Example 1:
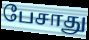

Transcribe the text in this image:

பேசாது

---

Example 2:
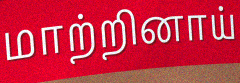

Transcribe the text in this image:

மாற்றினாய்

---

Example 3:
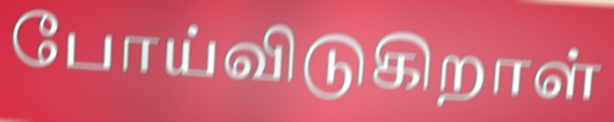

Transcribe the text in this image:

போய்விடுகிறாள்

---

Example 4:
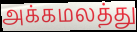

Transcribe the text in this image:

அக்கமலத்து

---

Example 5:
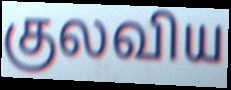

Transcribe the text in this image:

குலவிய